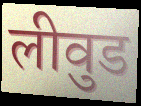
लीवुड